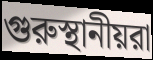
গুরুস্থানীয়রা